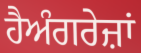
ਹੈਅੰਗਰੇਜ਼ਾਂ